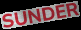
SUNDER